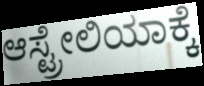
ಆಸ್ಟ್ರೇಲಿಯಾಕ್ಕೆ